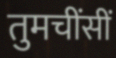
तुमचींसीं